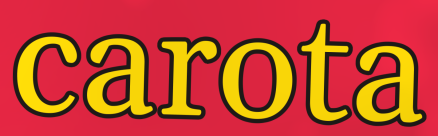
carota